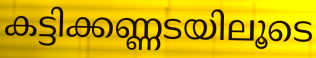
കട്ടിക്കണ്ണടയിലൂടെ